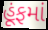
હૂંફમાં